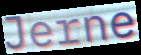
Jerne